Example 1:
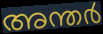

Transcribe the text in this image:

അന്തർ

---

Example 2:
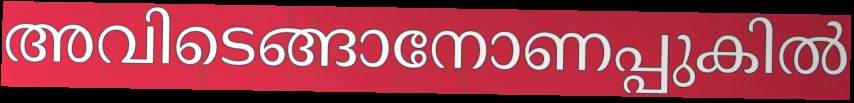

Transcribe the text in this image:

അവിടെങ്ങാനോണപ്പുകിൽ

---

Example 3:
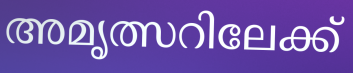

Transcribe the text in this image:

അമൃത്സറിലേക്ക്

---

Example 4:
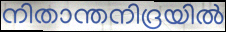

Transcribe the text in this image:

നിതാന്തനിദ്രയിൽ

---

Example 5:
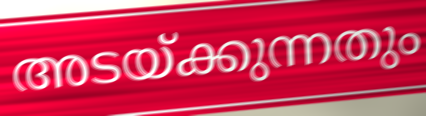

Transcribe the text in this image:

അടയ്ക്കുന്നതും